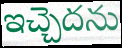
ఇచ్చెదను